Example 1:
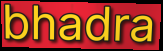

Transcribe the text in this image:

bhadra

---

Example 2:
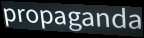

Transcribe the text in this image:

propaganda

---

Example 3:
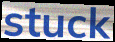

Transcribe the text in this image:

stuck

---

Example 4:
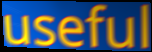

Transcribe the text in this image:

useful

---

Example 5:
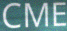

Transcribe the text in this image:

CME